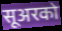
सूअरको